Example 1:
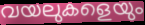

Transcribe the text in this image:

വയലുകളെയും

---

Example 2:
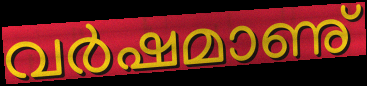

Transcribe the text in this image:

വർഷമാണു്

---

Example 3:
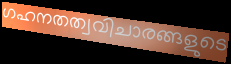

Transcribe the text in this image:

ഗഹനതത്വവിചാരങ്ങളുടെ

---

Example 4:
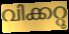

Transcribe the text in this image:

വിക്കറ്റു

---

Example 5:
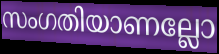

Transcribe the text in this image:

സംഗതിയാണല്ലോ